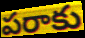
పరాకు